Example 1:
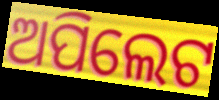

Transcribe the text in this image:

ଅପିଲେଟ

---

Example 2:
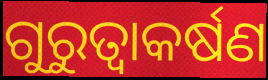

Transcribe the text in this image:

ଗୁରୁତ୍ଵାକର୍ଷଣ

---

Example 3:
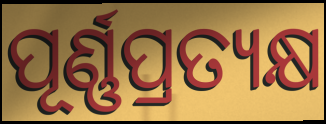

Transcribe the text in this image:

ପୂର୍ଣ୍ଣପ୍ରତ୍ୟକ୍ଷ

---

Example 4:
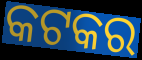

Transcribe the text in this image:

କଟକର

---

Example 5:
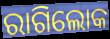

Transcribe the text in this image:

ରାଗିଲୋକ